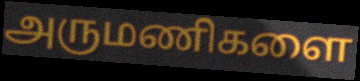
அருமணிகளை